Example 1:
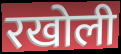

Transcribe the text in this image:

रखोली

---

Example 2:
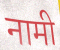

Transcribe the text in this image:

नामी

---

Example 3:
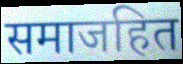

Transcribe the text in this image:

समाजहित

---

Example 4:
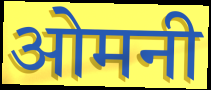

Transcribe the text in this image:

ओमनी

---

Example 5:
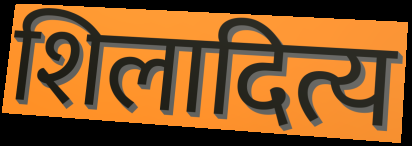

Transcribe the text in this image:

शिलादित्य